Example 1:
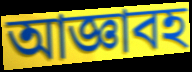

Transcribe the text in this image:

আজ্ঞাবহ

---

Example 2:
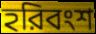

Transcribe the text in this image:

হরিবংশ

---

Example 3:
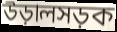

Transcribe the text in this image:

উড়ালসড়ক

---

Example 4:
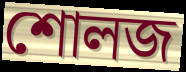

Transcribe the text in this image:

শোলজ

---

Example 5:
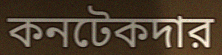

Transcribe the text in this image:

কনটেকদার